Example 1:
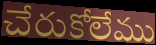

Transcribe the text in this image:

చేరుకోలేము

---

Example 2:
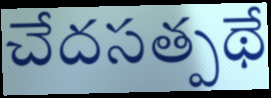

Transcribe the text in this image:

చేదసత్పథే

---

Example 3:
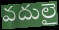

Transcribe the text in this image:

వదులై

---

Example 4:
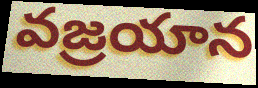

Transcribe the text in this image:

వజ్రయాన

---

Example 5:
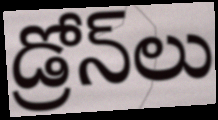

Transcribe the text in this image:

డ్రోన్‌లు